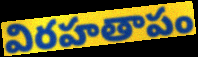
విరహతాపం